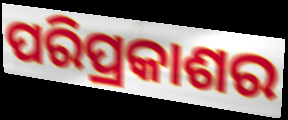
ପରିପ୍ରକାଶର